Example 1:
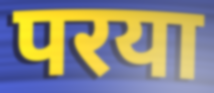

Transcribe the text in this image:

परया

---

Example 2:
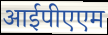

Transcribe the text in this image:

आईपीएएम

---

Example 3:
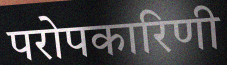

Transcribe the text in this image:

परोपकारिणी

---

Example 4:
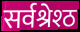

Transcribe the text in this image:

सर्वश्रेश्ठ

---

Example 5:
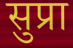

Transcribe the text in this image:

सुप्रा